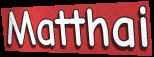
Matthai